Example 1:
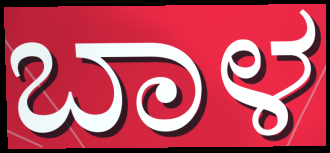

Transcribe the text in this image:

ಬಾಳ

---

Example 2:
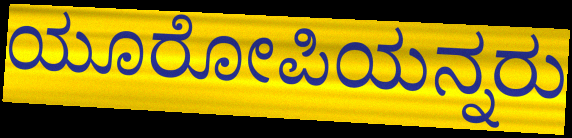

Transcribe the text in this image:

ಯೂರೋಪಿಯನ್ನರು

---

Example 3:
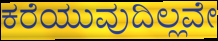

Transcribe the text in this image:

ಕರೆಯುವುದಿಲ್ಲವೇ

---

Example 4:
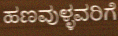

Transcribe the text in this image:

ಹಣವುಳ್ಳವರಿಗೆ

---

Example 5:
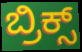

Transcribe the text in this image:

ಬ್ರಿಕ್ಸ್